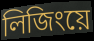
লিজিংয়ে